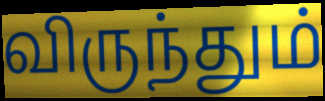
விருந்தும்